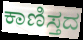
ಕಾಣಿಸ್ತದ